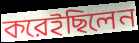
করেইছিলেন